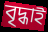
বৃদ্ধাই